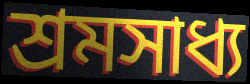
শ্ৰমসাধ্য